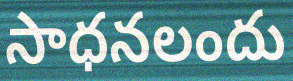
సాధనలందు